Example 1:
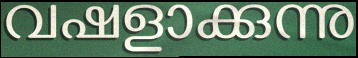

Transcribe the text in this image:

വഷളാക്കുന്നു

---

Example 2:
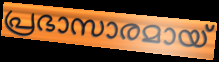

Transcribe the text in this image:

പ്രഭാസാരമായ്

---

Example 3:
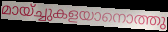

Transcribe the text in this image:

മായ്ച്ചുകളയാനൊത്തു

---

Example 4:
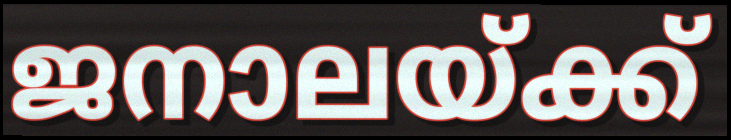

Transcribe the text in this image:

ജനാലയ്ക്ക്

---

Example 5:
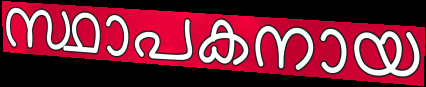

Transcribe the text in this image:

സ്ഥാപകനായ